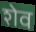
शेव